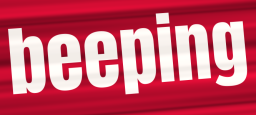
beeping